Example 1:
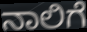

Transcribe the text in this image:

ನಾಲಿಗೆ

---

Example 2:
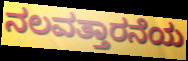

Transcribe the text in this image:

ನಲವತ್ತಾರನೆಯ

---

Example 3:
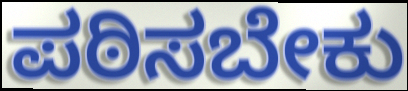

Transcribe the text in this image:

ಪಠಿಸಬೇಕು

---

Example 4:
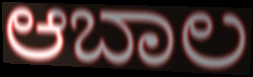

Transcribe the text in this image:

ಆಬಾಲ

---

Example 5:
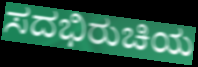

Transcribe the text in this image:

ಸದಭಿರುಚಿಯ